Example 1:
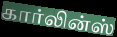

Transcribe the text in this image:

கார்லின்ஸ்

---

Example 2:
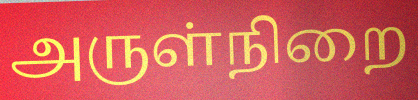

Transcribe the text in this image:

அருள்நிறை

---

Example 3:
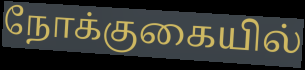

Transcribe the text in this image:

நோக்குகையில்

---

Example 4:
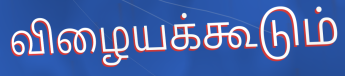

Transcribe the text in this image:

விழையக்கூடும்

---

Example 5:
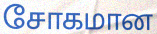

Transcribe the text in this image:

சோகமான